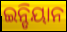
ଇନ୍ଡିୟାନ